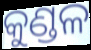
କୁଣ୍ଡଳ